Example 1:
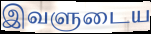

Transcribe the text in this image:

இவளுடைய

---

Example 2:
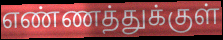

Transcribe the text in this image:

எண்ணத்துக்குள்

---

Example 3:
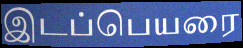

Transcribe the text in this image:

இடப்பெயரை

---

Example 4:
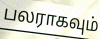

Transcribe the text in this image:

பலராகவும்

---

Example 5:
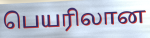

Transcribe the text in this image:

பெயரிலான